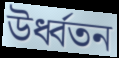
উর্ধ্বতন